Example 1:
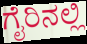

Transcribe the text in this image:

ಗೈರಿನಲ್ಲಿ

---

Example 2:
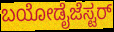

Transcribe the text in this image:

ಬಯೋಡೈಜೆಸ್ಟರ್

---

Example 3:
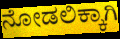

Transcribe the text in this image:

ನೋಡಲಿಕ್ಕಾಗಿ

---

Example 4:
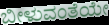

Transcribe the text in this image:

ಬೀಳುವಂತೆಯೇ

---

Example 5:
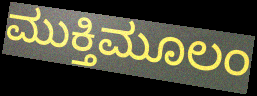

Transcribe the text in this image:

ಮುಕ್ತಿಮೂಲಂ